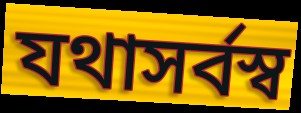
যথাসর্বস্ব